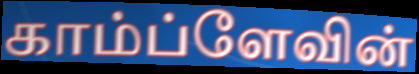
காம்ப்ளேவின்